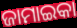
ଜାମାଇକା